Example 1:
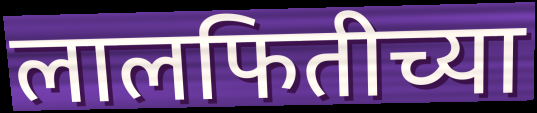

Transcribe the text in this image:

लालफितीच्या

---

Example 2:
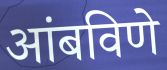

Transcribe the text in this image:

आंबविणे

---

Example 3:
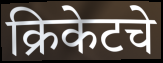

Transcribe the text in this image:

क्रिकेटचे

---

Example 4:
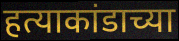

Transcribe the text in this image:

हत्याकांडाच्या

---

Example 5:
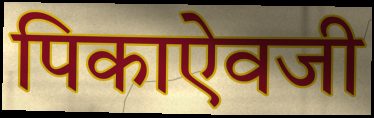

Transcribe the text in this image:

पिकाऐवजी